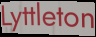
Lyttleton